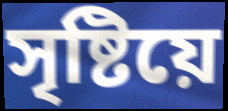
সৃষ্টিয়ে